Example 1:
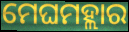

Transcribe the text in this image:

ମେଘମହ୍ଲାର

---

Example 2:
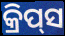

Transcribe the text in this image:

କ୍ରିପ୍‍ସ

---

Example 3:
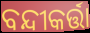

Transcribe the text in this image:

ବନ୍ଦୀକର୍ତ୍ତା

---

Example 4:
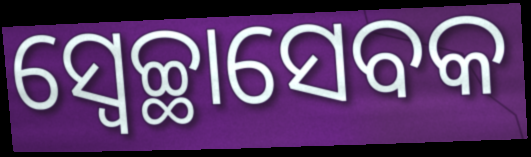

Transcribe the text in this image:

ସ୍ୱେଚ୍ଛାସେବକ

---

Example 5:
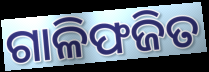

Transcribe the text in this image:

ଗାଳିଫଜିତ